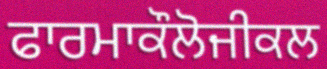
ਫਾਰਮਾਕੌਲੋਜੀਕਲ